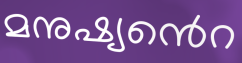
മനുഷ്യൻെറ